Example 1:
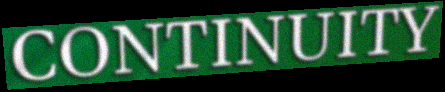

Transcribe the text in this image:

CONTINUITY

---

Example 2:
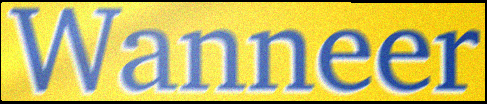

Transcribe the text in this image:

Wanneer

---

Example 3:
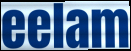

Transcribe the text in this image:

eelam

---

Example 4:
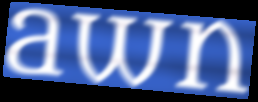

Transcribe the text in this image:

awn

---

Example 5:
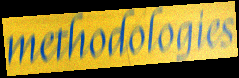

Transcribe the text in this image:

methodologies